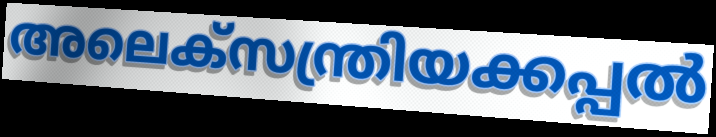
അലെക്സന്ത്രിയക്കപ്പൽ